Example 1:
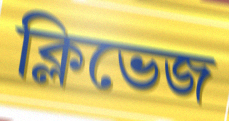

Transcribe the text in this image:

ক্লিভেজ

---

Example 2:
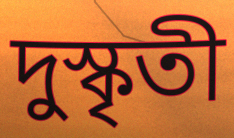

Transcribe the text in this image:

দুস্কৃতী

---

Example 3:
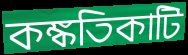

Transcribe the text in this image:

কঙ্কতিকাটি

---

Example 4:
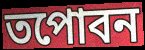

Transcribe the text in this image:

তপোবন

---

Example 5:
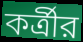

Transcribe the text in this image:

কর্ত্রীর